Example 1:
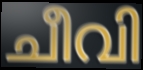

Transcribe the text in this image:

ചീവി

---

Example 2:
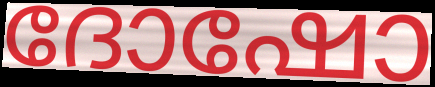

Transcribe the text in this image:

ദോഷോ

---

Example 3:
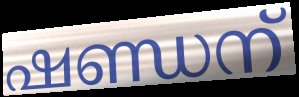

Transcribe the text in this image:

ഷണ്ഡന്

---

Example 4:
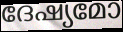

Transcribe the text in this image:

ദേഷ്യമോ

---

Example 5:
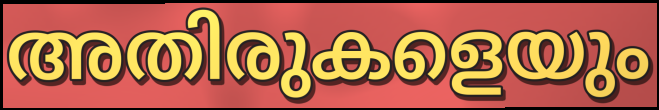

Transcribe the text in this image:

അതിരുകളെയും